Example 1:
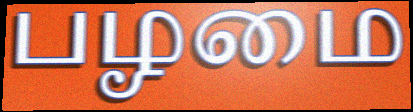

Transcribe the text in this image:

பழமை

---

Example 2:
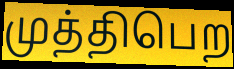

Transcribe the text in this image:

முத்திபெற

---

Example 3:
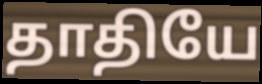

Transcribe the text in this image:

தாதியே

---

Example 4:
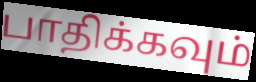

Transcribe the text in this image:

பாதிக்கவும்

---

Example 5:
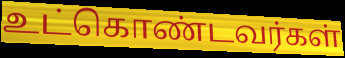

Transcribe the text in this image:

உட்கொண்டவர்கள்